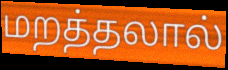
மறத்தலால்